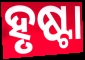
ହୃଷ୍ଟା